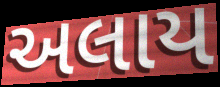
અલાય